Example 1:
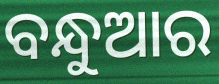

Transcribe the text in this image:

ବନ୍ଧୁଆର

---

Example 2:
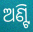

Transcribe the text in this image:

ଅଣ୍ଟି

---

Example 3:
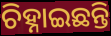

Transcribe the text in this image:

ଚିହ୍ନାଇଛନ୍ତି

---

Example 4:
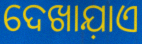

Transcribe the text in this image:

ଦେଖାଯ଼ାଏ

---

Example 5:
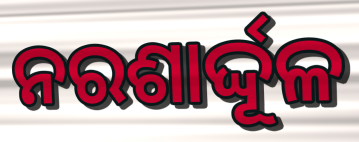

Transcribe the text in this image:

ନରଶାର୍ଦ୍ଦୂଳ